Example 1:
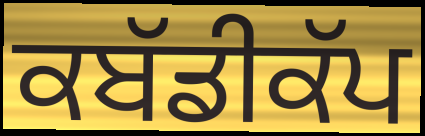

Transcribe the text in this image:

ਕਬੱਡੀਕੱਪ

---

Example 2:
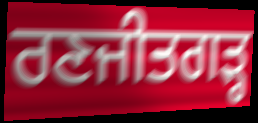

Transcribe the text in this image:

ਰਣਜੀਤਗੜ੍ਹ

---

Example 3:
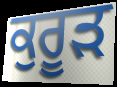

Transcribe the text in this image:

ਕੁਰੂੜ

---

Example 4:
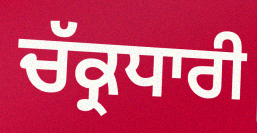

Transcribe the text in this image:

ਚੱਕ੍ਰਧਾਰੀ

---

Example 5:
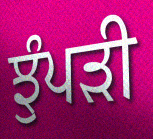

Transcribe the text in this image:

ਝੁੰਪੜੀ